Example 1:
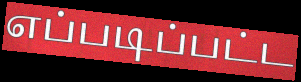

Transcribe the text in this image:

எப்படிப்பட்ட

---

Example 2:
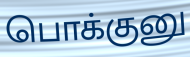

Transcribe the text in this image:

பொக்குனு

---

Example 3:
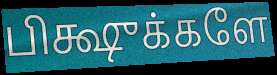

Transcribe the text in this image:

பிக்ஷுக்களே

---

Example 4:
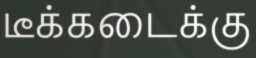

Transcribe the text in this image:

டீக்கடைக்கு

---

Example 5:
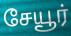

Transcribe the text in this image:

சேயூர்